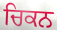
ਚਿਕਨ